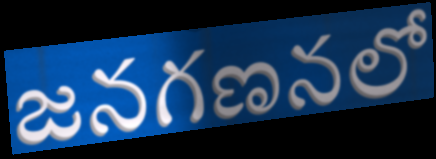
జనగణనలో